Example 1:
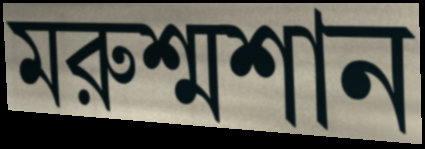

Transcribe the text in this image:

মরুশ্মশান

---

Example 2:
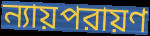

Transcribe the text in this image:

ন্যায়পরায়ণ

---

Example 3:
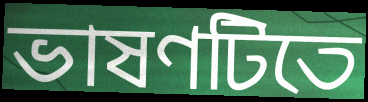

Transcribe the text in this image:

ভাষণটিতে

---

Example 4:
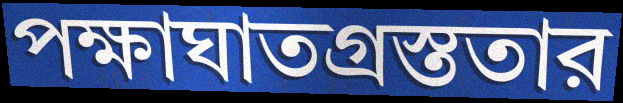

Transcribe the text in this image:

পক্ষাঘাতগ্রস্ততার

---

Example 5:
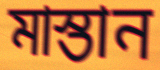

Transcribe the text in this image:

মাস্তান